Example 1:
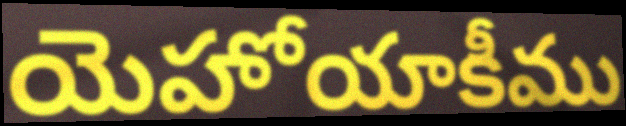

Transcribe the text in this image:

యెహోయాకీము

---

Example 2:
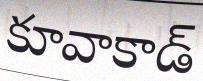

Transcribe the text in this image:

కూవాకాడ్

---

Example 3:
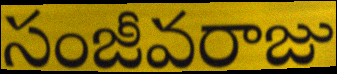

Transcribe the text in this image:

సంజీవరాజు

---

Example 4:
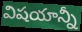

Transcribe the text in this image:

విషయాన్నీ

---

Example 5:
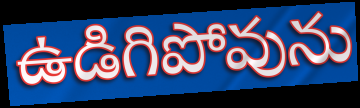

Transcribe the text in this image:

ఉడిగిపోవును